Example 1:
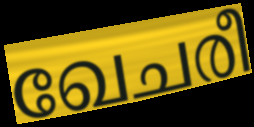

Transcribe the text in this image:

ഖേചരീ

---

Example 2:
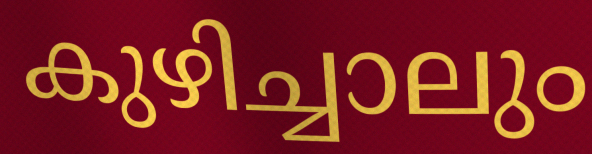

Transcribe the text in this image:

കുഴിച്ചാലും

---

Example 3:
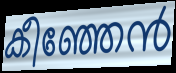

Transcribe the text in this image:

കീഞ്ഞേൻ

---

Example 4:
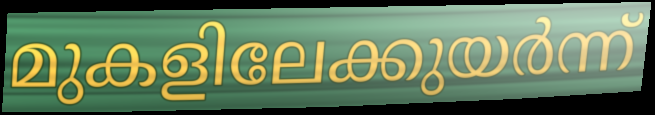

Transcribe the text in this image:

മുകളിലേക്കുയർന്ന്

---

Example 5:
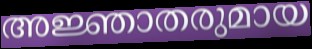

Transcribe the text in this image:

അജ്ഞാതരുമായ